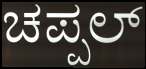
ಚಪ್ಪಲ್